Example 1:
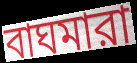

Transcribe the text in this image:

বাঘমারা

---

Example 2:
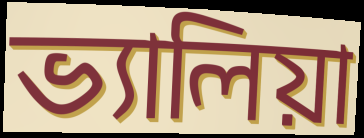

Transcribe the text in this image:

ভ্যালিয়া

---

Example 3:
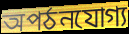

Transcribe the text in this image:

অপঠনযোগ্য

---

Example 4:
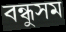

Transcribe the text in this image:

বন্ধুসম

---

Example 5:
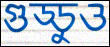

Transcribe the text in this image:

গুড্ডুও